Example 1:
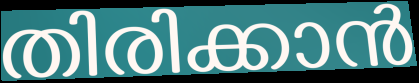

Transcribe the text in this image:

തിരിക്കാൻ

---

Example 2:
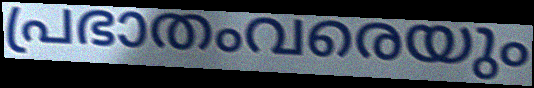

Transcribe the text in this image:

പ്രഭാതംവരെയും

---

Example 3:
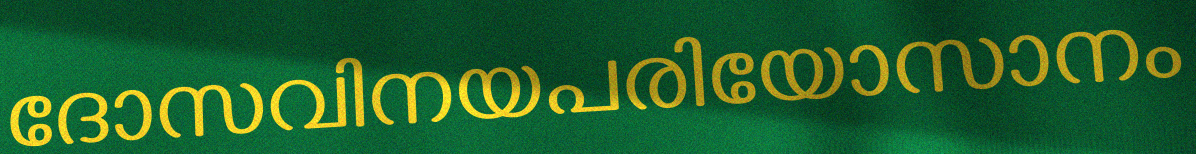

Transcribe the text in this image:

ദോസവിനയപരിയോസാനം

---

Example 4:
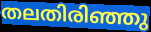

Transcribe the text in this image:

തലതിരിഞ്ഞു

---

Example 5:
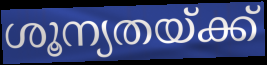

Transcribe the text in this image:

ശൂന്യതയ്ക്ക്